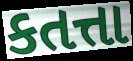
કતત્તા